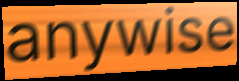
anywise